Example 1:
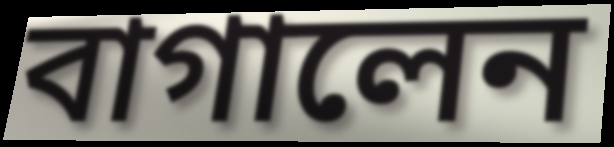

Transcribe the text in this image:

বাগালেন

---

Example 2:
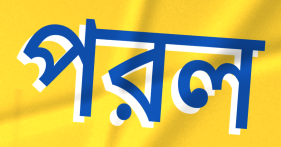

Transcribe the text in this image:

পরল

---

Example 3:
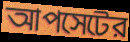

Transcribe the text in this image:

আপসেটের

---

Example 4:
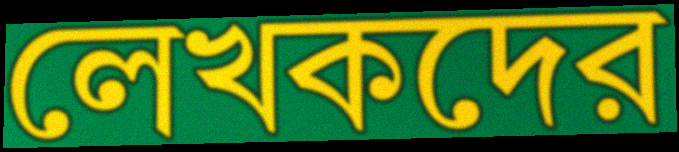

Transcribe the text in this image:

লেখকদের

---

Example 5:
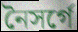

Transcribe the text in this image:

নৈসর্গে